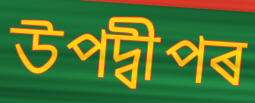
উপদ্বীপৰ